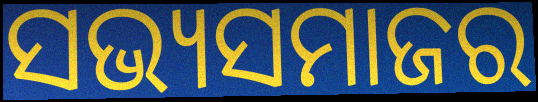
ସଭ୍ୟସମାଜର